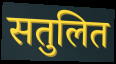
सतुलित